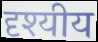
दृश्यीय